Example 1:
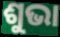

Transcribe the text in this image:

ଶୁଭା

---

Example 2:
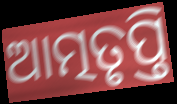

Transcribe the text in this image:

ଆତ୍ମତୃପ୍ତି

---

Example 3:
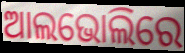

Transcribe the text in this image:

ଆଲଭୋଲିରେ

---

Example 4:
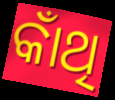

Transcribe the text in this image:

କାଁଥି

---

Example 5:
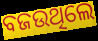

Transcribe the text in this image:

ବଜଉଥିଲେ